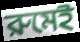
রুমেই